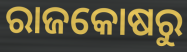
ରାଜକୋଷରୁ